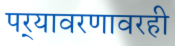
पर्यावरणावरही